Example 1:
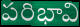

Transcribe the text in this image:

పరిభావి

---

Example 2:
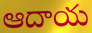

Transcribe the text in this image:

ఆదాయ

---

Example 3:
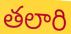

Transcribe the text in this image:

తలారి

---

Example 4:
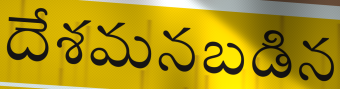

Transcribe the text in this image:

దేశమనబడిన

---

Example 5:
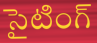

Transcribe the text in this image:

సైటింగ్